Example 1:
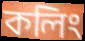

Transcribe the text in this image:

কলিং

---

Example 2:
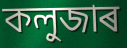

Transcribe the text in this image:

কলুজাৰ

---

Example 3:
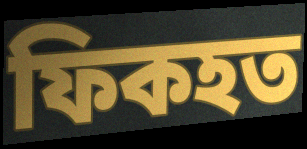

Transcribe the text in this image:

ফিকহত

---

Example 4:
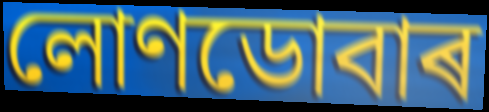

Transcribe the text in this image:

লোণডোবাৰ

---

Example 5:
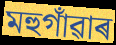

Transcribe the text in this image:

মহুগাঁৱাৰ